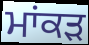
ਮਾਂਕੜ